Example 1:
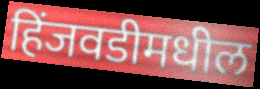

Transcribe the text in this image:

हिंजवडीमधील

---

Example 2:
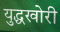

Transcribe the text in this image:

युद्धखोरी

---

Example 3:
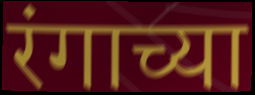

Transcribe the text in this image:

रंगाच्या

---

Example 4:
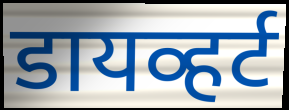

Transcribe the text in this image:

डायव्हर्ट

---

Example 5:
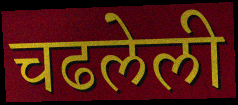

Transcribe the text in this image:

चढलेली